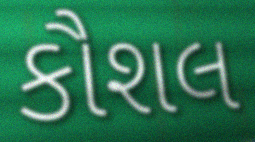
કૌશલ